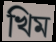
খিম